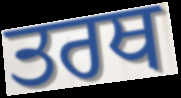
ਤਰਥ